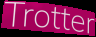
Trotter